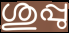
ശുപ്പു